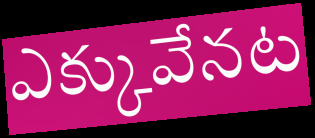
ఎక్కువేనట